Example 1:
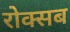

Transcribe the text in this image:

रोक्सब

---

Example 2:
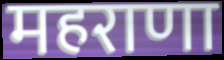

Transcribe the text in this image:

महराणा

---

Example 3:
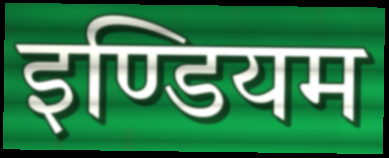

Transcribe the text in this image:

इण्डियम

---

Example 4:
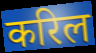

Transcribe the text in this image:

करिल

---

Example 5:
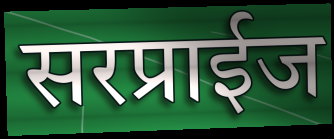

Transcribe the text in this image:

सरप्राईज